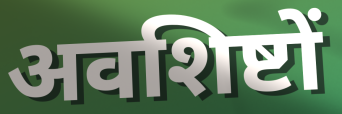
अवशिष्टों